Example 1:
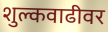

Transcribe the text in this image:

शुल्कवाढीवर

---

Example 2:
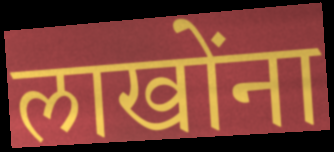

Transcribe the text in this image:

लाखोंना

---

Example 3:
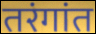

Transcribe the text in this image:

तरंगांत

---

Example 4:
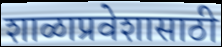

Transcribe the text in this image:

शाळाप्रवेशासाठी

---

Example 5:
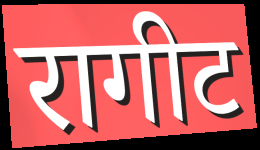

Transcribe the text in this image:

रागीट